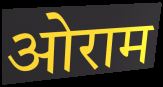
ओराम